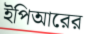
ইপিআরের